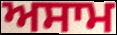
ਅਸਾਮ